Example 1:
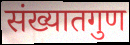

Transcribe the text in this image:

संख्यातगुण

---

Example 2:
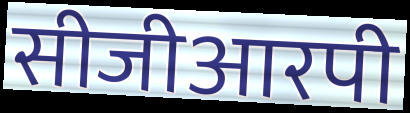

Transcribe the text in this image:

सीजीआरपी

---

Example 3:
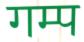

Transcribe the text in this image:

गम्प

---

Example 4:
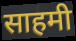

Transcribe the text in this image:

साहमी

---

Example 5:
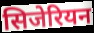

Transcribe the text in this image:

सिजेरियन